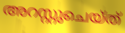
അറസ്റ്റുചെയ്ത്